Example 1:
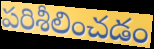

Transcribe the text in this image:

పరిశీలించడం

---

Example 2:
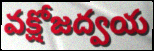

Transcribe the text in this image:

వక్షోజద్వయ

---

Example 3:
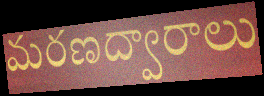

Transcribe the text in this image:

మరణద్వారాలు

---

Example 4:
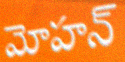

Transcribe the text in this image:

మోహన్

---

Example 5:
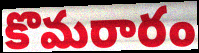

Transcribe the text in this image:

కొమరారం